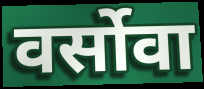
वर्सोवा